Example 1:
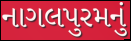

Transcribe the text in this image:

નાગલપુરમનું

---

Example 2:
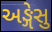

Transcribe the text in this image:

અઙ્ગેસુ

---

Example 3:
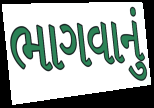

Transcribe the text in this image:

ભાગવાનું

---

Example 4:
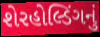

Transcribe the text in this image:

શેરહોલ્ડિંગનું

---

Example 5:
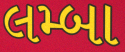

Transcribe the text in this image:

લમ્બા